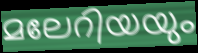
മലേറിയയും